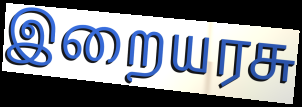
இறையரசு